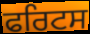
ਫਰਿਟਸ